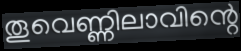
തൂവെണ്ണിലാവിന്റെ